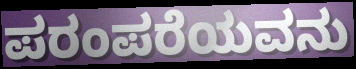
ಪರಂಪರೆಯವನು